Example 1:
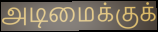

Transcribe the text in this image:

அடிமைக்குக்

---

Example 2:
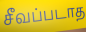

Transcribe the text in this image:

சீவப்படாத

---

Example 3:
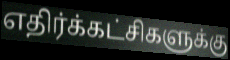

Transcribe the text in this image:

எதிர்க்கட்சிகளுக்கு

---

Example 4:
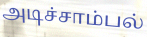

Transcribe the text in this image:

அடிச்சாம்பல்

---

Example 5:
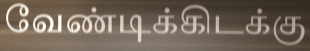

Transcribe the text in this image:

வேண்டிக்கிடக்கு